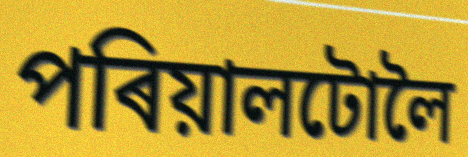
পৰিয়ালটোলৈ